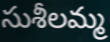
సుశీలమ్మ